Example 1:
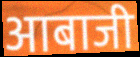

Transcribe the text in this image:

आबाजी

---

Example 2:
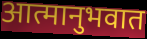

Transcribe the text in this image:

आत्मानुभवात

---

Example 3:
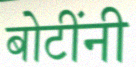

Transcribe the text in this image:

बोटींनी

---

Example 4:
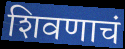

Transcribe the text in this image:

शिवणाचं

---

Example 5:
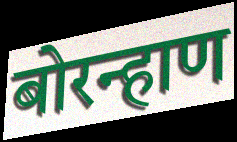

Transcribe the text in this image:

बोरन्हाण